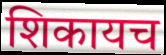
शिकायच